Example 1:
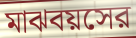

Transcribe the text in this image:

মাঝবয়সের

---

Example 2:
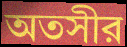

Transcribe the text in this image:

অতসীর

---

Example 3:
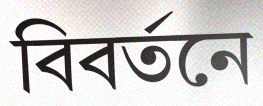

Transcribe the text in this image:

বিবর্তনে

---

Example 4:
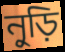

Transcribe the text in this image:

নুড়ি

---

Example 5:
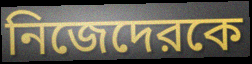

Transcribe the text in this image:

নিজেদেরকে